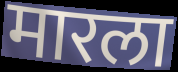
मारला